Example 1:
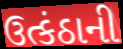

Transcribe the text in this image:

ઉત્કંઠાની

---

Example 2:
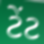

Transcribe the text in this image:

ટેંટ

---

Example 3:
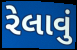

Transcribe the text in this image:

રેલાવું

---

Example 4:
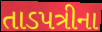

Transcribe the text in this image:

તાડપત્રીના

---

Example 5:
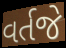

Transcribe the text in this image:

વર્તજે